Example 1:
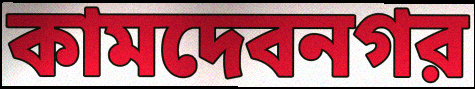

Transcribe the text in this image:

কামদেবনগর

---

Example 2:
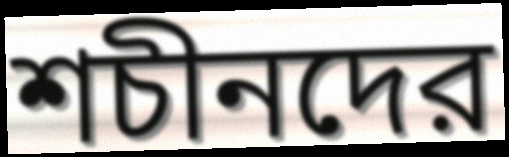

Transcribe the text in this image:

শচীনদের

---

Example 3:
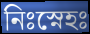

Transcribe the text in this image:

নিঃস্নেহঃ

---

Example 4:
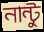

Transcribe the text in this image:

নান্টু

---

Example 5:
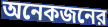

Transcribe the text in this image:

অনেকজনের